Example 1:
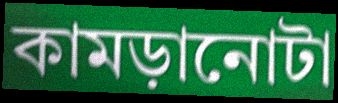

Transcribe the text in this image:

কামড়ানোটা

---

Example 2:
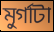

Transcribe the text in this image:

মুর্গাটা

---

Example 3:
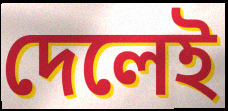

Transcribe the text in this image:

দেলেই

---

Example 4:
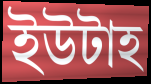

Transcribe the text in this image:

ইউটাহ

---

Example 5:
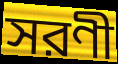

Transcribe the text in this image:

সরণী